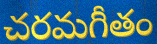
చరమగీతం